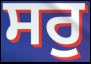
ਸਰੁ